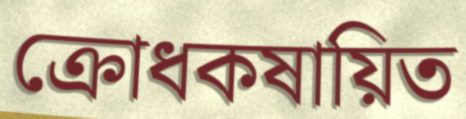
ক্রোধকষায়িত